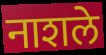
नाशले